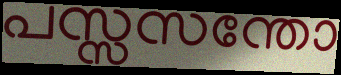
പസ്സസന്തോ